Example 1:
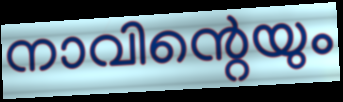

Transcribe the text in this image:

നാവിന്റെയും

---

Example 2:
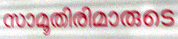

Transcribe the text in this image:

സാമൂതിരിമാരുടെ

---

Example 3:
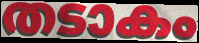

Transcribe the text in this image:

തടാകം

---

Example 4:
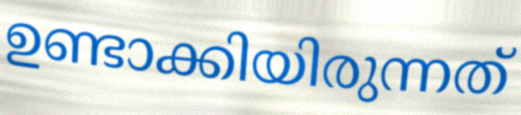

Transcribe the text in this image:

ഉണ്ടാക്കിയിരുന്നത്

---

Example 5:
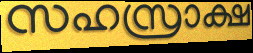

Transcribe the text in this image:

സഹസ്രാക്ഷ